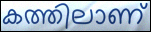
കത്തിലാണ്